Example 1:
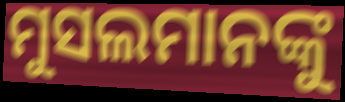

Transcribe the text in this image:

ମୁସଲମାନଙ୍କୁ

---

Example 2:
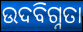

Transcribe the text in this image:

ଉଦବିଗ୍ନତା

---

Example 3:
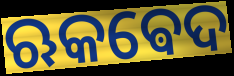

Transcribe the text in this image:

ଋକଵେଦ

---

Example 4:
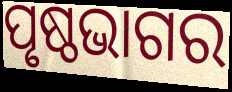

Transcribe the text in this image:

ପୃଷ୍ଠଭାଗର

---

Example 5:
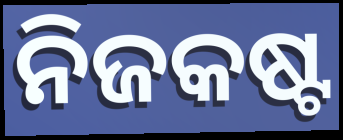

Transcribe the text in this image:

ନିଜକଷ୍ଟ